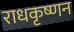
राधकृष्णन